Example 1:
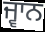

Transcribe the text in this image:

ਜ੍ਵਾਨ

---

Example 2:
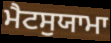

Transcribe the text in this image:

ਮੈਟਸੁਯਾਮਾ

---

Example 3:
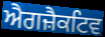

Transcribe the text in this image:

ਐਗਜ਼ੈਕਟਿਵ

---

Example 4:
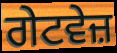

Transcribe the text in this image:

ਗੇਟਵੇਜ਼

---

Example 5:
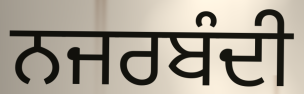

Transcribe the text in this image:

ਨਜਰਬੰਦੀ